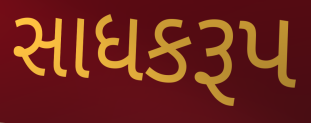
સાધકરૂપ